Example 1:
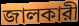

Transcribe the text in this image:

জালকারী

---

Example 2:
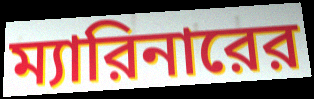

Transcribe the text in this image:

ম্যারিনারের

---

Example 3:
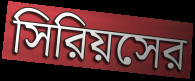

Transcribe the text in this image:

সিরিয়সের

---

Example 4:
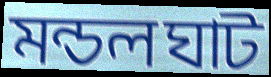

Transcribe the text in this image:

মন্ডলঘাট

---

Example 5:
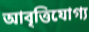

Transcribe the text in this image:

আবৃত্তিযোগ্য